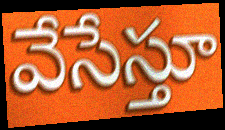
వేసేస్తూ